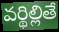
వర్థిల్లితే